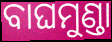
ବାଘମୁଣ୍ଡା